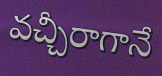
వచ్చీరాగానే